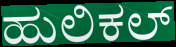
ಹುಲಿಕಲ್